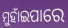
ମୁହାଁଇପାରେ